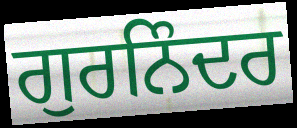
ਗੁਰਨਿੰਦਰ